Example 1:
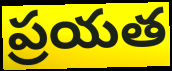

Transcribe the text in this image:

ప్రయత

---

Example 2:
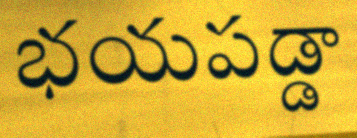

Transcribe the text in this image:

భయపడ్డా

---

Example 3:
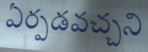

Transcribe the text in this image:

ఏర్పడవచ్చని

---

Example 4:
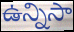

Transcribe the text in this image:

ఉన్నిసా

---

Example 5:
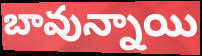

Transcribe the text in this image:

బావున్నాయి